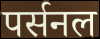
पर्सनल